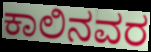
ಕಾಲಿನವರ